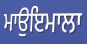
ਮਾਉਇਮਾਲਾ